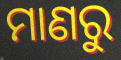
ମାଣରୁ